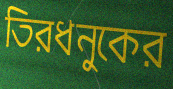
তিরধনুকের